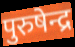
पुरुषेन्द्र